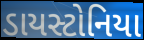
ડાયસ્ટોનિયા